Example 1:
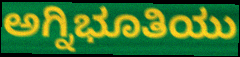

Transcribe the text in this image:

ಅಗ್ನಿಭೂತಿಯು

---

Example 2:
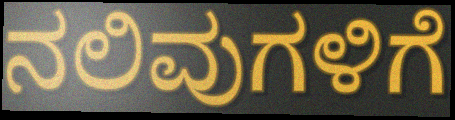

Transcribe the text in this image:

ನಲಿವುಗಳಿಗೆ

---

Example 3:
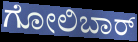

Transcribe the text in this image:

ಗೋಲಿಬಾರ್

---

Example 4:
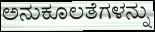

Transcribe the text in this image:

ಅನುಕೂಲತೆಗಳನ್ನು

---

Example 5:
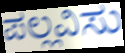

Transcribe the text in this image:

ಪಲ್ಲವಿಸು